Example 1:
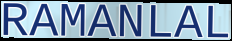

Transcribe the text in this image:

RAMANLAL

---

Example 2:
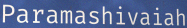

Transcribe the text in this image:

Paramashivaiah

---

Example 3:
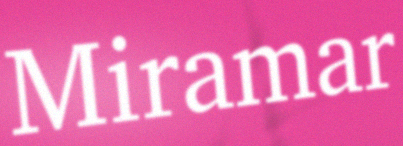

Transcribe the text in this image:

Miramar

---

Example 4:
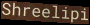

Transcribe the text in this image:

Shreelipi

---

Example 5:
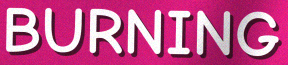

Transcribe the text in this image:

BURNING